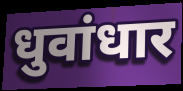
धुवांधार